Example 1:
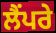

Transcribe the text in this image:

ਲੈਂਪਰੇ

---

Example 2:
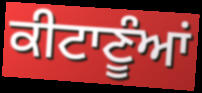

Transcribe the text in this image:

ਕੀਟਾਣੂੰਆਂ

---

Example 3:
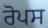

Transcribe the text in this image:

ਰੋਪਸ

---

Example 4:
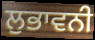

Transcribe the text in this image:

ਲੁਭਾਵਨੀ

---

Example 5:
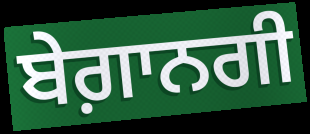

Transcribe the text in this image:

ਬੇਗ਼ਾਨਗੀ